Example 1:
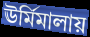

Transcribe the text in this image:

ঊর্মিমালায়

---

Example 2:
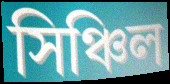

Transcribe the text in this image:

সিঞ্চিল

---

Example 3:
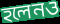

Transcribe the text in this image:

হলেনও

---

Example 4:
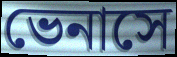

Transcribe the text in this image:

ভেনাসে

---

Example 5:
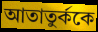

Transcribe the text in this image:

আতাতুর্ককে